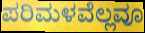
ಪರಿಮಳವೆಲ್ಲವೂ